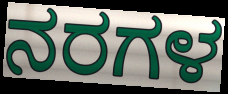
ನರಗಳ